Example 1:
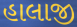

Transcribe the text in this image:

હાલાજી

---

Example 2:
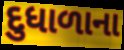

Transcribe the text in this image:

દુધાળાના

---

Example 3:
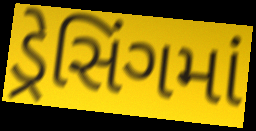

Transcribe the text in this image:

ડ્રેસિંગમાં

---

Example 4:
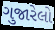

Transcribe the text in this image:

ગુજારેલો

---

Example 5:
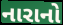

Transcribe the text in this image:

નારાનો